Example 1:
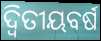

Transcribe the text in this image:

ଦ୍ୱିତୀୟବର୍ଷ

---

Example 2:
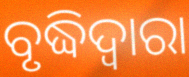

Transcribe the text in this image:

ବୃଦ୍ଧିଦ୍ୱାରା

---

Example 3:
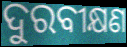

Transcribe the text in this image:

ଦୁରବୀକ୍ଷଣ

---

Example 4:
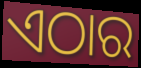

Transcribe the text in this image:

ଏଠାର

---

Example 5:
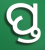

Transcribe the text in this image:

ପ୍ତ